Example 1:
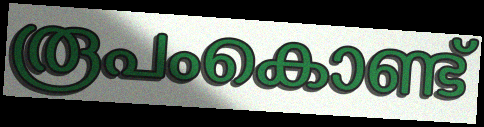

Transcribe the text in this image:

രൂപംകൊണ്ട്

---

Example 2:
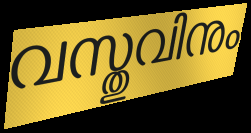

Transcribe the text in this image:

വസ്തുവിനും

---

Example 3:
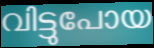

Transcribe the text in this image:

വിട്ടുപോയ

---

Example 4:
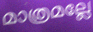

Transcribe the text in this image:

മാത്രമല്ലേ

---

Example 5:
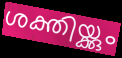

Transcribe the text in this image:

ശക്തിയ്ക്കും